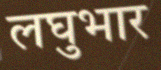
लघुभार